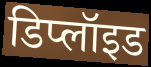
डिप्लॉइड